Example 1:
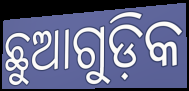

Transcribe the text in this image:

ଛୁଆଗୁଡ଼ିକ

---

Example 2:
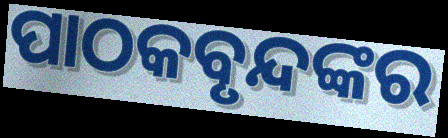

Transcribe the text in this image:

ପାଠକବୃନ୍ଦଙ୍କର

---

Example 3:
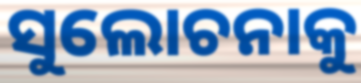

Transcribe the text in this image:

ସୁଲୋଚନାକୁ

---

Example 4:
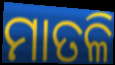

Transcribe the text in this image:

ମାତଳି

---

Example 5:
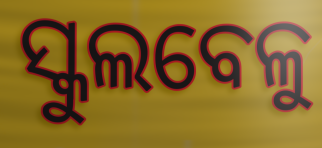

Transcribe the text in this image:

ସ୍କୁଲବେଳୁ